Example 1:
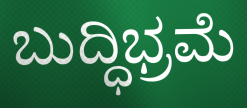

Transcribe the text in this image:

ಬುದ್ಧಿಭ್ರಮೆ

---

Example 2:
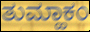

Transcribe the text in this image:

ತುಮ್ಹಾಕಂ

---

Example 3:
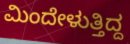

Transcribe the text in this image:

ಮಿಂದೇಳುತ್ತಿದ್ದ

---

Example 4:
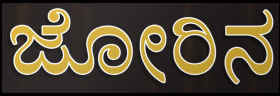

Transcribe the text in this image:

ಜೋರಿನ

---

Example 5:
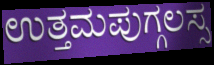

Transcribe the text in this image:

ಉತ್ತಮಪುಗ್ಗಲಸ್ಸ